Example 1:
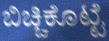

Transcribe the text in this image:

ಬಿಚ್ಚಿಕೊಟ್ಟೆ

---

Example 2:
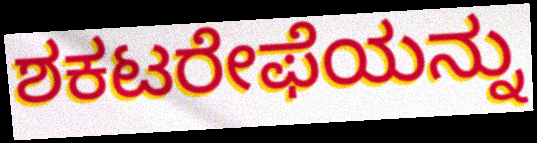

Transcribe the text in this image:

ಶಕಟರೇಫೆಯನ್ನು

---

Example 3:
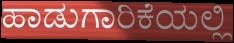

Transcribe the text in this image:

ಹಾಡುಗಾರಿಕೆಯಲ್ಲಿ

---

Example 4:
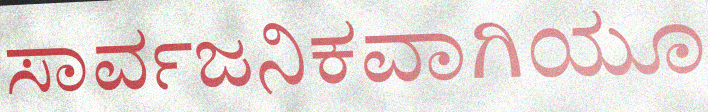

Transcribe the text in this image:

ಸಾರ್ವಜನಿಕವಾಗಿಯೂ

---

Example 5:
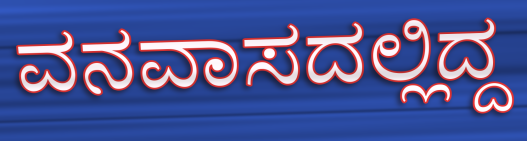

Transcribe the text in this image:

ವನವಾಸದಲ್ಲಿದ್ದ